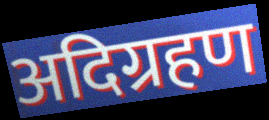
अदिग्रहण